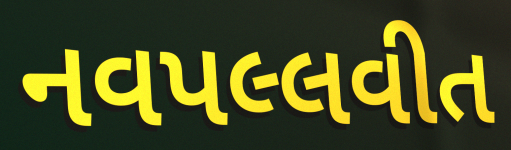
નવપલ્લવીત